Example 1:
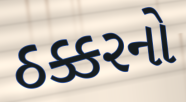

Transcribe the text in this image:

ઠક્કરનો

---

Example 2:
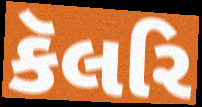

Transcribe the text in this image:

કૅલરિ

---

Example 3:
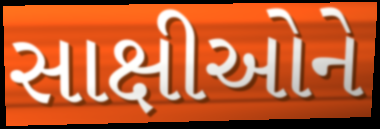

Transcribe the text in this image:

સાક્ષીઓને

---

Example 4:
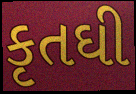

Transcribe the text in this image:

કૃતઘી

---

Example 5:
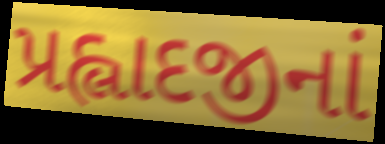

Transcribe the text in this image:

પ્રહ્લાદજીનાં